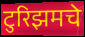
टुरिझमचे